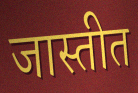
जास्तीत